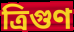
ত্রিগুণ